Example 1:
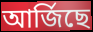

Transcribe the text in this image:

আৰ্জিছে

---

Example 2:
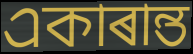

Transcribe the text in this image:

একাৰান্ত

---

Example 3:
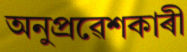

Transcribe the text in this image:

অনুপ্ৰৱেশকাৰী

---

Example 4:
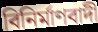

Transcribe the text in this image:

বিনিৰ্মাণবাদী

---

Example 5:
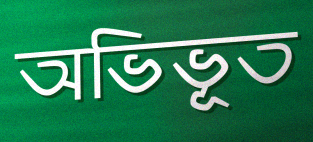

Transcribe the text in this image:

অভিভূত